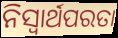
ନିସ୍ଵାର୍ଥପରତା